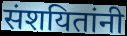
संशयितांनी